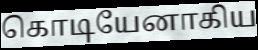
கொடியேனாகிய